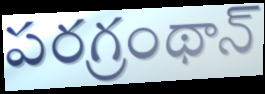
పరగ్రంథాన్